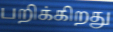
பறிக்கிறது